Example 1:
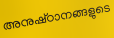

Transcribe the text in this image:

അനുഷ്‌ഠാനങ്ങളുടെ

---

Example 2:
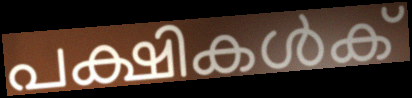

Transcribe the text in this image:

പക്ഷികൾക്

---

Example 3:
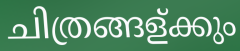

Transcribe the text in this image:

ചിത്രങ്ങള്ക്കും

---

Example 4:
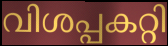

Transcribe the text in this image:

വിശപ്പകറ്റി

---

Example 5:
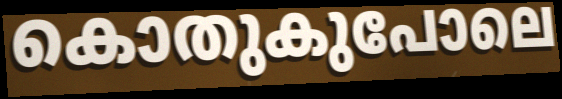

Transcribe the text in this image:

കൊതുകുപോലെ